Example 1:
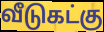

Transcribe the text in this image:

வீடுகட்கு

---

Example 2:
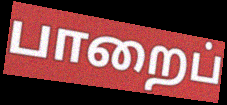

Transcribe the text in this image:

பாறைப்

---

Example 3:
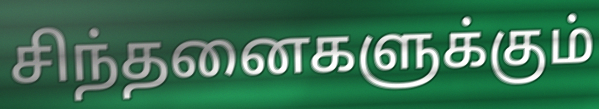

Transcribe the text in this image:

சிந்தனைகளுக்கும்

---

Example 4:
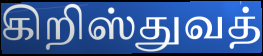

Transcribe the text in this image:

கிறிஸ்துவத்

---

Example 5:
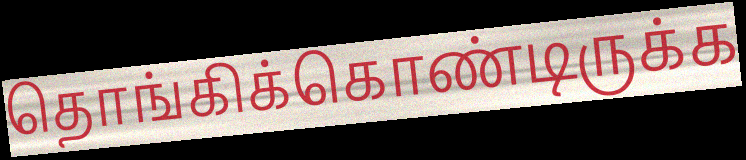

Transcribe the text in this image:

தொங்கிக்கொண்டிருக்க